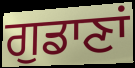
ਗੁਡਾਣਾਂ